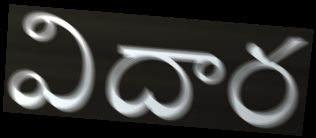
విదార